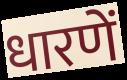
धारणें